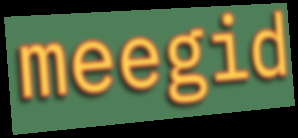
meegid